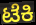
ಟೆಕಿ